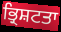
ਭ੍ਰਿਸ਼ਟਤਾ